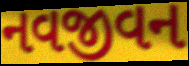
નવજીવન